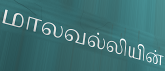
மாலவல்லியின்